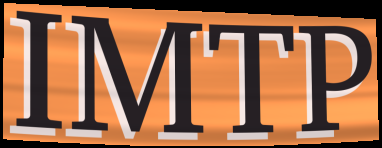
IMTP